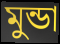
মুন্ডা